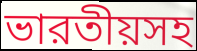
ভারতীয়সহ